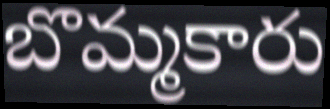
బొమ్మకారు